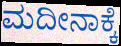
ಮದೀನಾಕ್ಕೆ